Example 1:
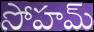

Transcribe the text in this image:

సోహమ్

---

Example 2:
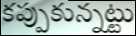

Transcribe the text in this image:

కప్పుకున్నట్టు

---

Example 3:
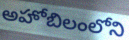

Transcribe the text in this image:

అహోబిలంలోని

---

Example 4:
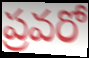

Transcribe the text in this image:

ప్రవరో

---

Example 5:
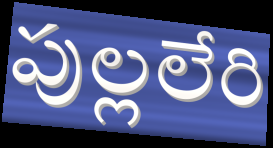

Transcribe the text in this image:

పుల్లలేరి